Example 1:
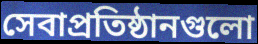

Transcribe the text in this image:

সেবাপ্রতিষ্ঠানগুলো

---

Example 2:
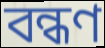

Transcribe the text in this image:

বন্ধণ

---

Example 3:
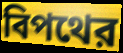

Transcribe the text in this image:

বিপথের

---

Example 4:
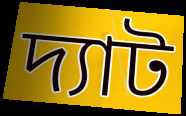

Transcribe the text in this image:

দ্যাট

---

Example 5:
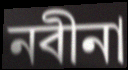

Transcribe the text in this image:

নবীনা